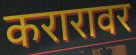
करारावर